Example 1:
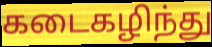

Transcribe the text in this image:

கடைகழிந்து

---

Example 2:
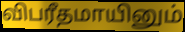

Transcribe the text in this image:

விபரீதமாயினும்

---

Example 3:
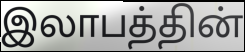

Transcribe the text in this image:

இலாபத்தின்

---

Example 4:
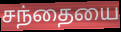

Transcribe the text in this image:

சந்தையை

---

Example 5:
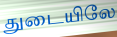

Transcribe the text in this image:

துடையிலே